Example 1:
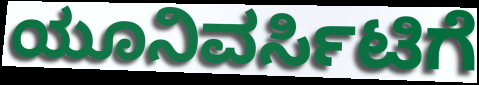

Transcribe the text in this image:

ಯೂನಿವರ್ಸಿಟಿಗೆ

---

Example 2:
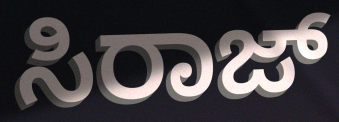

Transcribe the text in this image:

ಸಿರಾಜ್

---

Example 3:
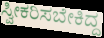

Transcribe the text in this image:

ಸ್ವೀಕರಿಸಬೇಕಿದ್ದ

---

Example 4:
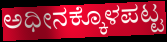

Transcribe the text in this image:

ಅಧೀನಕ್ಕೊಳಪಟ್ಟ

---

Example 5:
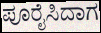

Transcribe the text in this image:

ಪೂರೈಸಿದಾಗ